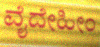
ವೈದೇಹೀಂ